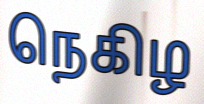
நெகிழ